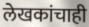
लेखकांचाही